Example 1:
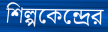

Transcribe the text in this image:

শিল্পকেন্দ্রের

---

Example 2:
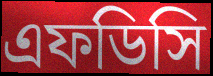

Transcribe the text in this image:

এফডিসি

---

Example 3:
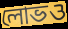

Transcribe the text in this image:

লোভও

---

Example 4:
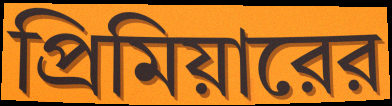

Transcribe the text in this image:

প্রিমিয়ারের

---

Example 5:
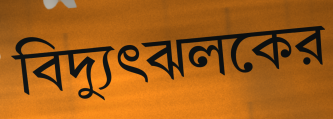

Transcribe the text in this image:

বিদ্যুৎঝলকের